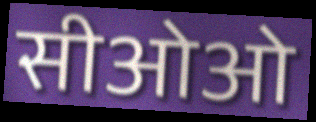
सीओओ